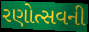
રણોત્સવની